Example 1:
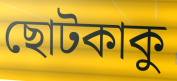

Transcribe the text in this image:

ছোটকাকু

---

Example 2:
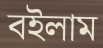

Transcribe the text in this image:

বইলাম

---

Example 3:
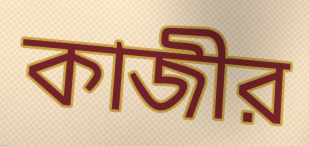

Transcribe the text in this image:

কাজীর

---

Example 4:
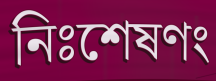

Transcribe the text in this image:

নিঃশেষণং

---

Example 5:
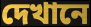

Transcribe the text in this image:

দেখানে